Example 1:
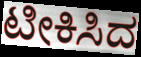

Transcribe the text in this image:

ಟೀಕಿಸಿದ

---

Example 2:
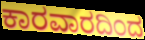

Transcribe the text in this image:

ಕಾರವಾರದಿಂದ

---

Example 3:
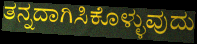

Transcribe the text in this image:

ತನ್ನದಾಗಿಸಿಕೊಳ್ಳುವುದು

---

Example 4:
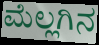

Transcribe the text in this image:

ಮೆಲ್ಲಗಿನ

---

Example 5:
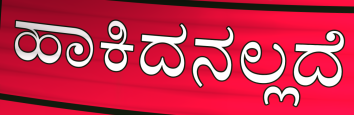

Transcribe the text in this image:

ಹಾಕಿದನಲ್ಲದೆ